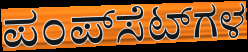
ಪಂಪ್‌ಸೆಟ್‌ಗಳ